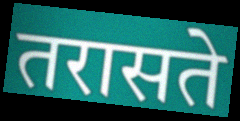
तरासते